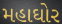
મહાઘોર